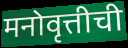
मनोवृत्तीची